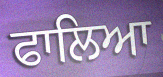
ਫਾਲਿਆ